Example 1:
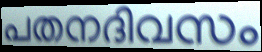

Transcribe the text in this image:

പതനദിവസം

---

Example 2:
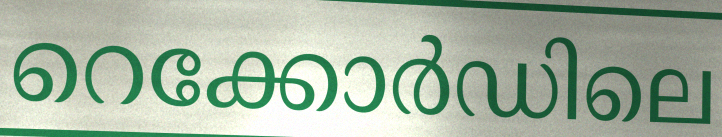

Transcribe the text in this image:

റെക്കോർഡിലെ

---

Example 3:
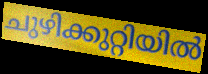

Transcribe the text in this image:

ചുഴിക്കുറ്റിയിൽ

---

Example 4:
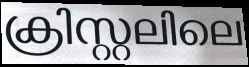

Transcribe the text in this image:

ക്രിസ്റ്റലിലെ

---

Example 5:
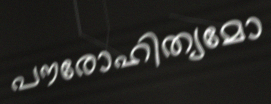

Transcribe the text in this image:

പൗരോഹിത്യമോ